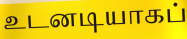
உடனடியாகப்